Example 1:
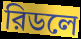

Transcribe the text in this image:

রিডলে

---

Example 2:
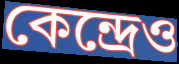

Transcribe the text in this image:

কেন্দ্রেও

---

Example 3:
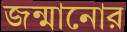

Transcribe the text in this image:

জন্মানোর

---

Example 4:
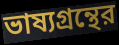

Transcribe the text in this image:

ভাষ্যগ্রন্থের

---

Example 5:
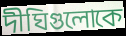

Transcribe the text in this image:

দীঘিগুলোকে